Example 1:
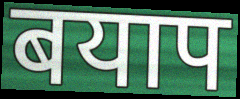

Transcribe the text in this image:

बयाप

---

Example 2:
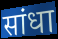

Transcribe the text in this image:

सांधा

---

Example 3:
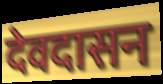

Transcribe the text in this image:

देवदासन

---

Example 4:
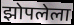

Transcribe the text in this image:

झोपलेला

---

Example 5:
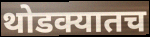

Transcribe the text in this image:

थोडक्यातच